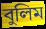
বুলিম